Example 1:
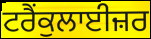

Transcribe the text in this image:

ਟਰੈਂਕੁਲਾਈਜ਼ਰ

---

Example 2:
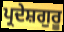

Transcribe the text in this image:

ਪ੍ਰਦੇਸ਼ਗੁਰੂ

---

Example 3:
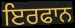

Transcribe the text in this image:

ਇਰਫਾਨ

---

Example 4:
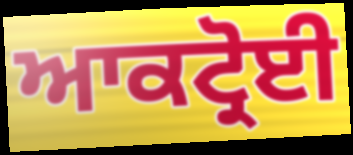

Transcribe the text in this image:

ਆਕਟ੍ਰੋਈ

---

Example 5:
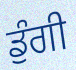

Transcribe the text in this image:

ਡੁੰਗੀ